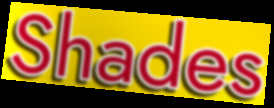
Shades